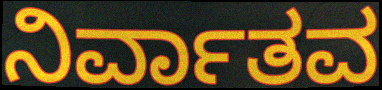
ನಿರ್ವಾತವ